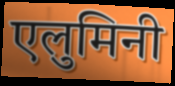
एलुमिनी